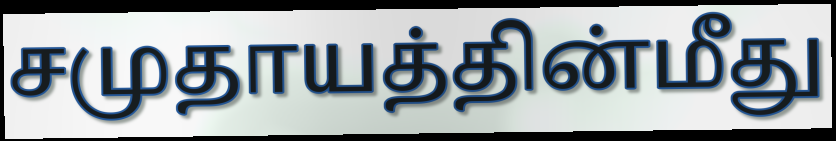
சமுதாயத்தின்மீது